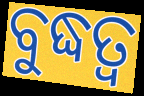
ବୁଦ୍ଧତ୍ଵ